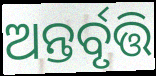
ଅନ୍ତର୍ବୃତ୍ତି